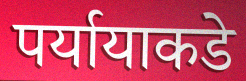
पर्यायाकडे